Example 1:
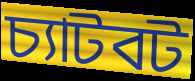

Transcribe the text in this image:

চ্যাটবট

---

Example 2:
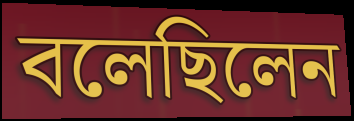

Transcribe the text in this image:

বলেছিলেন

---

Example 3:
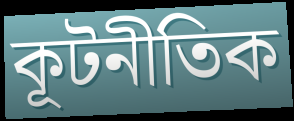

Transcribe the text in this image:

কূটনীতিক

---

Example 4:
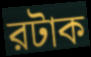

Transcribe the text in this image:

রটাক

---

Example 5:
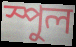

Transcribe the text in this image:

স্পুল